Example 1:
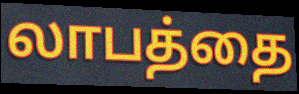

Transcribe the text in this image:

லாபத்தை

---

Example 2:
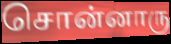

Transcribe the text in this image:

சொன்னாரு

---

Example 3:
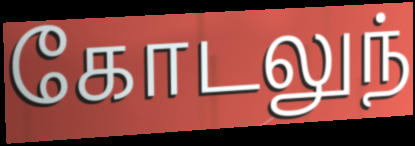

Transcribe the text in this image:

கோடலுந்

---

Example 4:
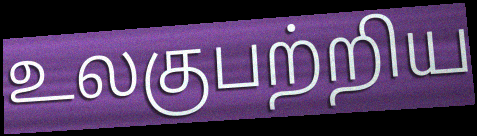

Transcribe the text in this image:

உலகுபற்றிய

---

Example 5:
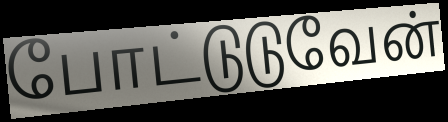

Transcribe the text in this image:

போட்டுடுவேன்